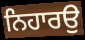
ਨਿਹਾਰਉ